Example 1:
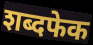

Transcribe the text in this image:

शब्दफेक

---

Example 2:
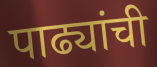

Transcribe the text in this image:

पाढ्यांची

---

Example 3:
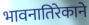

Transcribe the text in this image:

भावनातिरेकाने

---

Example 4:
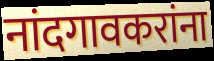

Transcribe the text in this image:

नांदगावकरांना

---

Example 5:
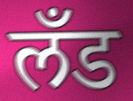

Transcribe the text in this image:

लँड